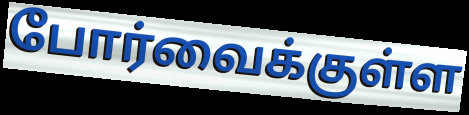
போர்வைக்குள்ள